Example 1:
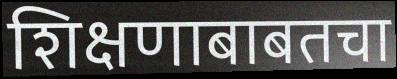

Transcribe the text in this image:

शिक्षणाबाबतचा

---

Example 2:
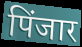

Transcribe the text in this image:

पिंजार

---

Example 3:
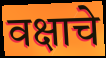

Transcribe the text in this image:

वक्षाचे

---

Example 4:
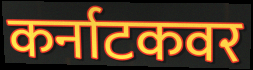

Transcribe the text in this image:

कर्नाटकवर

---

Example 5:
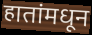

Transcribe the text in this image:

हातांमधून